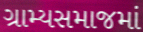
ગ્રામ્યસમાજમાં